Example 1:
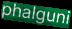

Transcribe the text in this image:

phalguni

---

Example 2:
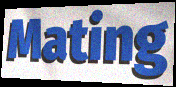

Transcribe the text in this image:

Mating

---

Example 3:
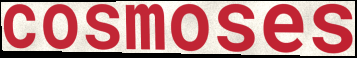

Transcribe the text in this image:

cosmoses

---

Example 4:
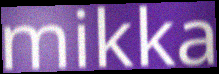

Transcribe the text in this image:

mikka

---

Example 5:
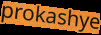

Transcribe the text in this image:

prokashye